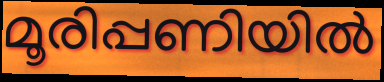
മൂരിപ്പണിയിൽ